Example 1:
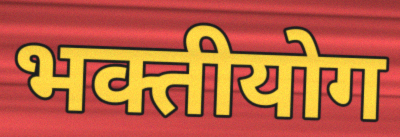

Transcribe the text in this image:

भक्तीयोग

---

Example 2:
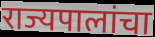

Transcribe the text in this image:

राज्यपालांचा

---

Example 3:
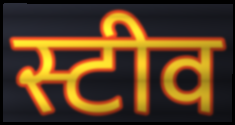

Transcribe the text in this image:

स्टीव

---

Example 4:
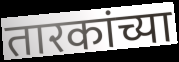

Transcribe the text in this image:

तारकांच्या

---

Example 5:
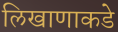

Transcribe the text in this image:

लिखाणाकडे